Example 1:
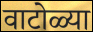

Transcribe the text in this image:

वाटोळ्या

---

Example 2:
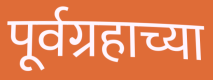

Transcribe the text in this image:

पूर्वग्रहाच्या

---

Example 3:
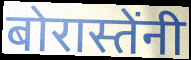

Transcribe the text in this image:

बोरास्तेंनी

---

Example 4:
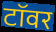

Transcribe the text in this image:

टॉवर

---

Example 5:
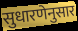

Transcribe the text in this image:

सुधारणेनुसार